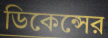
ডিকেন্সের